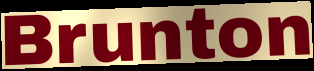
Brunton